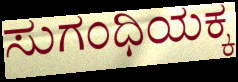
ಸುಗಂಧಿಯಕ್ಕ